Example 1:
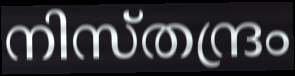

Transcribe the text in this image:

നിസ്തന്ദ്രം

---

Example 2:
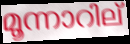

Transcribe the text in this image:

മൂന്നാറില്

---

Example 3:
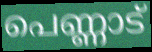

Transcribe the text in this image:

പെണ്ണാട്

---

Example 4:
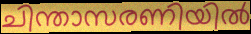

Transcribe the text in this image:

ചിന്താസരണിയിൽ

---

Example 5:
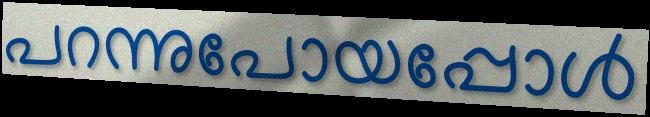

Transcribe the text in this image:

പറന്നുപോയപ്പോൾ